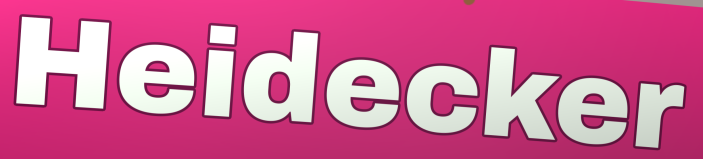
Heidecker